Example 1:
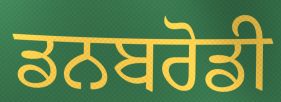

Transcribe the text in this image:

ਡਨਬਰੋਡੀ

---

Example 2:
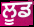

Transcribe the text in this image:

ਲੂਡ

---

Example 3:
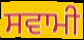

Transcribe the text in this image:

ਸਵਾਮੀ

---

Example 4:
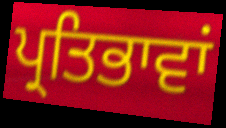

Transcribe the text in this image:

ਪ੍ਰਤਿਭਾਵਾਂ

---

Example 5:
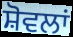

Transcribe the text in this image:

ਸ਼ੋਵਲਾਂ